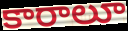
కారాలూ